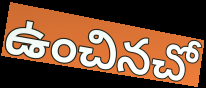
ఉంచినచో